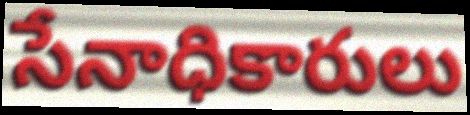
సేనాధికారులు